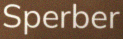
Sperber